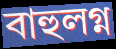
বাহুলগ্ন